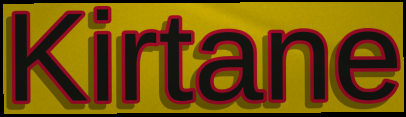
Kirtane